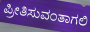
ಪ್ರೀತಿಸುವಂತಾಗಲಿ